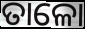
ତାଳୋ